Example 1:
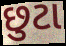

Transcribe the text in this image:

છુટા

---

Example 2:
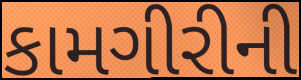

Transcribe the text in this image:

કામગીરીની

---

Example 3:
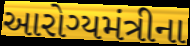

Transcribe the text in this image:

આરોગ્યમંત્રીના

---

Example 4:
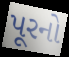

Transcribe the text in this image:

પૂરનો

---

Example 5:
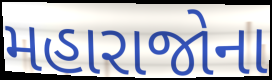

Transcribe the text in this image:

મહારાજોના